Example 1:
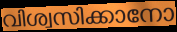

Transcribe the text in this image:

വിശ്വസിക്കാനോ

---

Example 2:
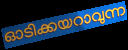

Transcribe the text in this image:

ഓടിക്കയറാവുന്ന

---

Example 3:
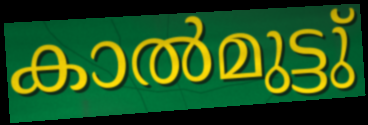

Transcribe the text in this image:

കാൽമുട്ടു്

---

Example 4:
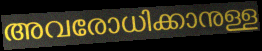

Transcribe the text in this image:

അവരോധിക്കാനുള്ള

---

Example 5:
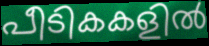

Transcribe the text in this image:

പീടികകളിൽ